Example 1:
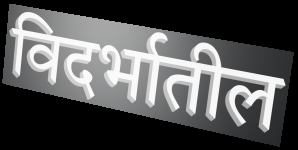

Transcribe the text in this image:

विदर्भातील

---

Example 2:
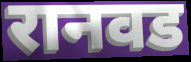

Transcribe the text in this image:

रानवड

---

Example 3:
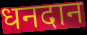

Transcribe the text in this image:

धनदान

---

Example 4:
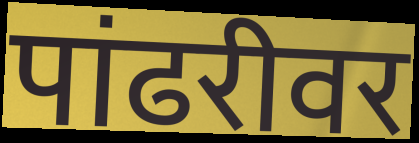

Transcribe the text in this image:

पांढरीवर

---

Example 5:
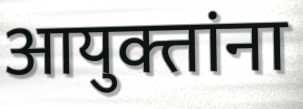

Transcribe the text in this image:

आयुक्तांना